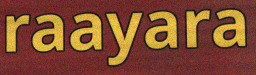
raayara